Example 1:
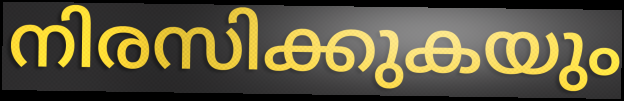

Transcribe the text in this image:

നിരസിക്കുകയും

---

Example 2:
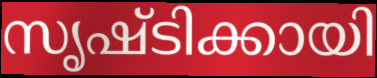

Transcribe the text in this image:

സൃഷ്ടിക്കായി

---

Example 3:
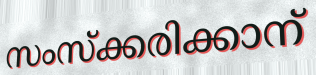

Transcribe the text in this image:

സംസ്ക്കരിക്കാന്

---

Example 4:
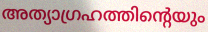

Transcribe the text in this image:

അത്യാഗ്രഹത്തിന്റെയും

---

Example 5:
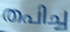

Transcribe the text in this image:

തപിച്ച